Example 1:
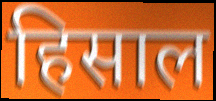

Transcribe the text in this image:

हिसाल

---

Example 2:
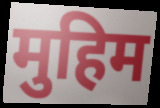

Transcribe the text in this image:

मुहिम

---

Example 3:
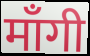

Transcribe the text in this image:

माँगी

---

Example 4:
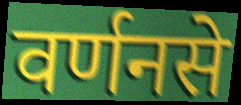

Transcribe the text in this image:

वर्णनसे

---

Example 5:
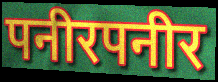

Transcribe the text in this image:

पनीरपनीर